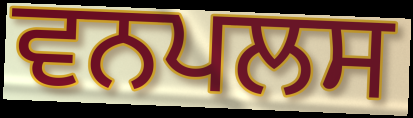
ਵਨਪਲਸ